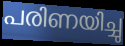
പരിണയിച്ചു